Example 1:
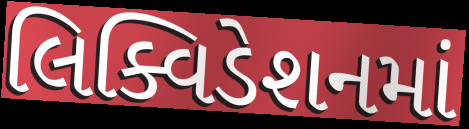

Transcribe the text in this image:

લિક્વિડેશનમાં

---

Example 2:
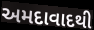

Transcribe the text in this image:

અમદાવાદથી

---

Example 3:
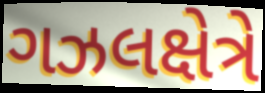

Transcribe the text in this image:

ગઝલક્ષેત્રે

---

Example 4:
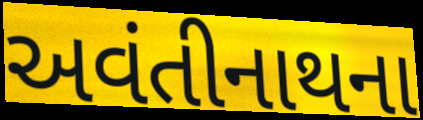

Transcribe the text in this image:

અવંતીનાથના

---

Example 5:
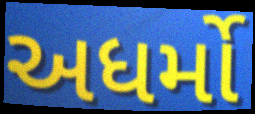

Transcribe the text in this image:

અધર્મો